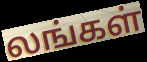
லங்கள்